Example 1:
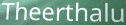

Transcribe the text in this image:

Theerthalu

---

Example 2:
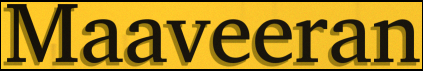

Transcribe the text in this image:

Maaveeran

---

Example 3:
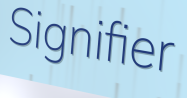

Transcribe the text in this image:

Signifier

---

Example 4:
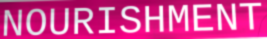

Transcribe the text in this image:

NOURISHMENT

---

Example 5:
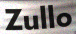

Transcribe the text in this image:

Zullo